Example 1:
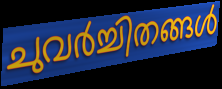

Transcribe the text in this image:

ചുവർച്ചിതങ്ങൾ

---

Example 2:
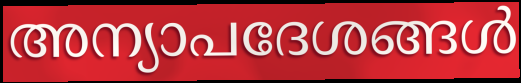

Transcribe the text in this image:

അന്യാപദേശങ്ങൾ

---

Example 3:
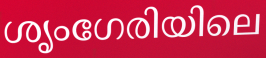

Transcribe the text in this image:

ശൃംഗേരിയിലെ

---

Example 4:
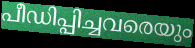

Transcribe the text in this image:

പീഡിപ്പിച്ചവരെയും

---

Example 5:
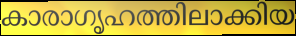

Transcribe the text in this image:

കാരാഗൃഹത്തിലാക്കിയ